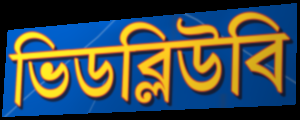
ভিডব্লিউবি